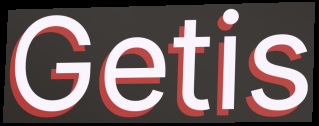
Getis